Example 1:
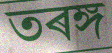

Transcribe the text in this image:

তৰঙ্গ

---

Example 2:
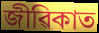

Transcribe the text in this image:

জীৱিকাত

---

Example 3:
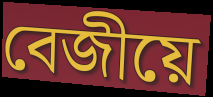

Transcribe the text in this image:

বেজীয়ে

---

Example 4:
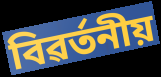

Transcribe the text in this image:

বিৱৰ্তনীয়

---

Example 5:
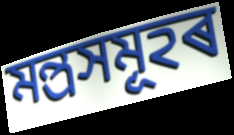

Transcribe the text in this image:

মন্ত্ৰসমূহৰ